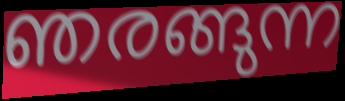
ഞരങ്ങുന്ന